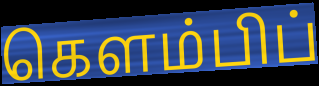
கௌம்பிப்